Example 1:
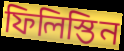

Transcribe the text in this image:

ফিলিস্তিন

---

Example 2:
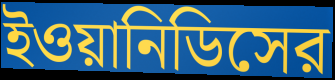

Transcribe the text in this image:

ইওয়ানিডিসের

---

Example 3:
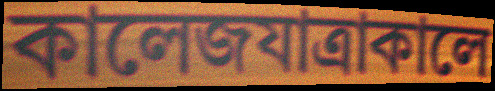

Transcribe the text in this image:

কালেজযাত্রাকালে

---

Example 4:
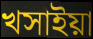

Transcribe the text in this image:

খসাইয়া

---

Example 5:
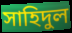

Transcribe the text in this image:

সাহিদুল